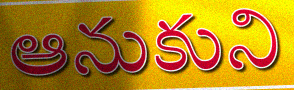
ఆనుకుని